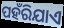
ପହଁରିଯାଏ